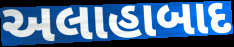
અલાહાબાદ